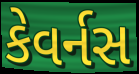
કેવર્નસ